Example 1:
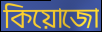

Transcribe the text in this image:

কিয়োজো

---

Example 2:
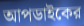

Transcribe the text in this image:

আপডাইকের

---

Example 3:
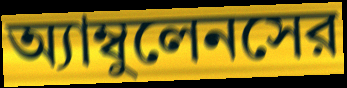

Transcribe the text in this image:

অ্যাম্বুলেনসের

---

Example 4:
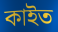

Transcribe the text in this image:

কাইত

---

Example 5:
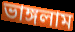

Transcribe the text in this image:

ভাঙ্গলাম